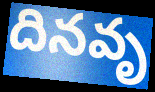
దినవృ